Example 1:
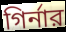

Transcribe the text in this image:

গির্নার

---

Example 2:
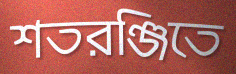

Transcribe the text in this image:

শতরঞ্জিতে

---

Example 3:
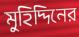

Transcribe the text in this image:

মুহিদ্দিনের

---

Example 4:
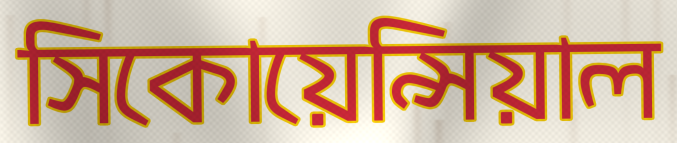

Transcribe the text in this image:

সিকোয়েন্সিয়াল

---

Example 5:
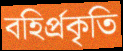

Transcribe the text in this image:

বহির্প্রকৃতি